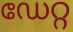
ഡേറ്റ